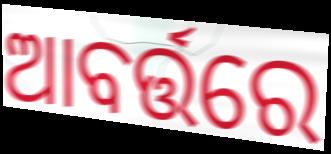
ଆବର୍ତ୍ତରେ